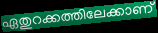
ഏതുറക്കത്തിലേക്കാണ്